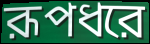
রূপধরে